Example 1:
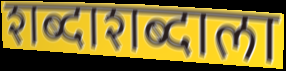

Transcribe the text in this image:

शब्दाशब्दाला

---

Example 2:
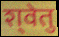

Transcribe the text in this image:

श्वेतु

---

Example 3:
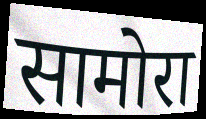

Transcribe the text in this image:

सामोरा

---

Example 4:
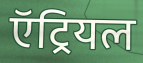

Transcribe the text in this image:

ऍट्रियल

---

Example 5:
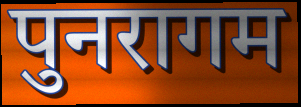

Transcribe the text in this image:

पुनरागम